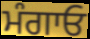
ਮੰਗਾਓ